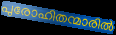
പുരോഹിതന്മാരിൽ